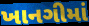
ખાનગીમાં